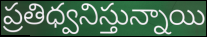
ప్రతిధ్వనిస్తున్నాయి